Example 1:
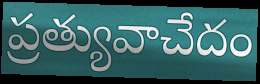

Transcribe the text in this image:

ప్రత్యువాచేదం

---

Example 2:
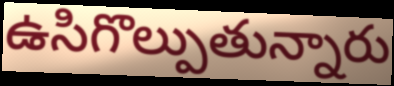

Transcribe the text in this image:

ఉసిగొల్పుతున్నారు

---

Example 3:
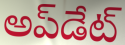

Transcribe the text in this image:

అప్‌డేట్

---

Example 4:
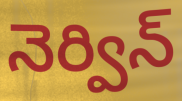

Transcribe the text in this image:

నెర్విన్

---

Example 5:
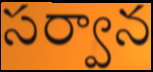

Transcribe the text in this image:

సర్వాన